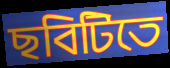
ছবিটিতে